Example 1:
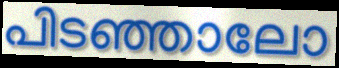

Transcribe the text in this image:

പിടഞ്ഞാലോ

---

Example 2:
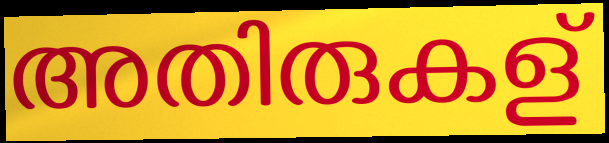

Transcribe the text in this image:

അതിരുകള്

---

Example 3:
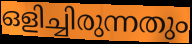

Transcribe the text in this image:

ഒളിച്ചിരുന്നതും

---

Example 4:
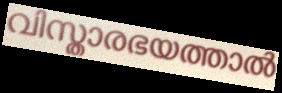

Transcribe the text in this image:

വിസ്താരഭയത്താൽ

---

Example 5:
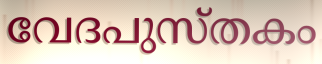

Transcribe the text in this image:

വേദപുസ്തകം